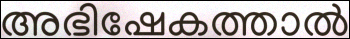
അഭിഷേകത്താൽ